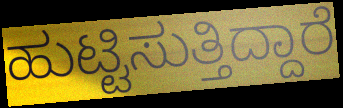
ಹುಟ್ಟಿಸುತ್ತಿದ್ದಾರೆ